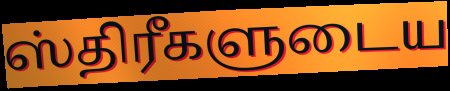
ஸ்திரீகளுடைய